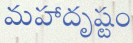
మహాదృష్టం